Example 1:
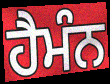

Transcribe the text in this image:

ਹੈਮੰਨ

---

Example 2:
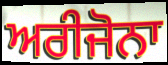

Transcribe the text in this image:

ਅਰੀਜੋਨਾ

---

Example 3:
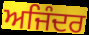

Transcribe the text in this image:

ਅਜਿੰਦਰ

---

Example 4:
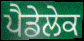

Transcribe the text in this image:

ਪੈਡੇਲੇਕ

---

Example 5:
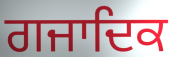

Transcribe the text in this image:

ਗਜਾਦਿਕ